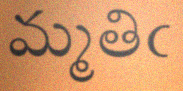
మ్మతిఁ